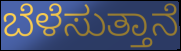
ಬೆಳೆಸುತ್ತಾನೆ